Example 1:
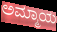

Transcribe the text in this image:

ಅಮ್ಮಾಯ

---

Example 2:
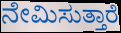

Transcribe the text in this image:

ನೇಮಿಸುತ್ತಾರೆ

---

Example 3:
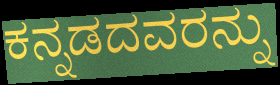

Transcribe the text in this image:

ಕನ್ನಡದವರನ್ನು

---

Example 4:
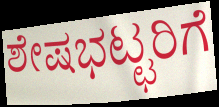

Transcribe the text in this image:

ಶೇಷಭಟ್ಟರಿಗೆ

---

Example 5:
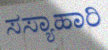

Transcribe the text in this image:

ಸಸ್ಯಾಹಾರಿ